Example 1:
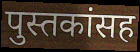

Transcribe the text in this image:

पुस्तकांसह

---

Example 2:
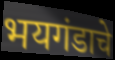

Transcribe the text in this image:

भयगंडाचे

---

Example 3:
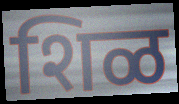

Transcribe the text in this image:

शिळ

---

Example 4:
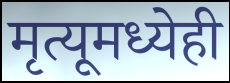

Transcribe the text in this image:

मृत्यूमध्येही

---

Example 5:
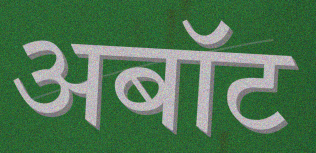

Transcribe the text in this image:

अबॉट